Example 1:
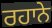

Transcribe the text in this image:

ਰਹਾਨੇ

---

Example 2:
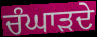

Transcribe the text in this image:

ਚੰਘਾੜਦੇ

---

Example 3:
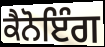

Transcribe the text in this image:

ਕੈਨੋਇੰਗ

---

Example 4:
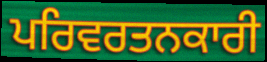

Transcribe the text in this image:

ਪਰਿਵਰਤਨਕਾਰੀ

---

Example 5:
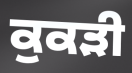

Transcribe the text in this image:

ਕੁਕੜੀ